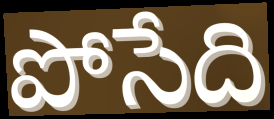
పోసేది